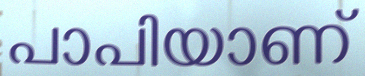
പാപിയാണ്